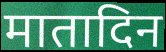
मातादिन